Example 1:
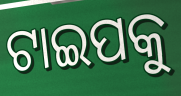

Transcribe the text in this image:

ଟାଇପକୁ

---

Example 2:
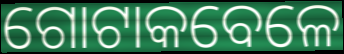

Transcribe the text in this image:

ଗୋଟାକବେଳେ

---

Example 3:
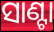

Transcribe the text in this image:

ସାଣ୍ଟା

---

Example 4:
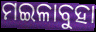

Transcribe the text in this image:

ମଇଳାବୁହା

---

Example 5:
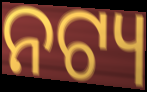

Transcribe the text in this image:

ନଟ୍ୟ